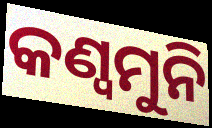
କଣ୍ୱମୁନି